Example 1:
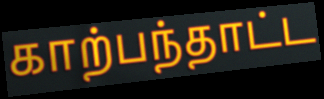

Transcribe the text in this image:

காற்பந்தாட்ட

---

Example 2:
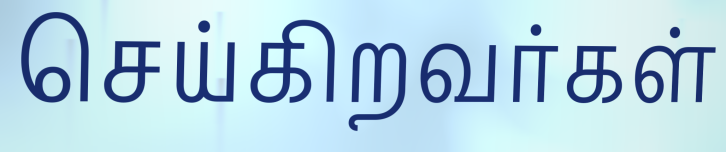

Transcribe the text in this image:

செய்கிறவர்கள்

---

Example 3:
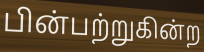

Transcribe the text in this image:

பின்பற்றுகின்ற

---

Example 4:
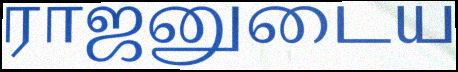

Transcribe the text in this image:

ராஜனுடைய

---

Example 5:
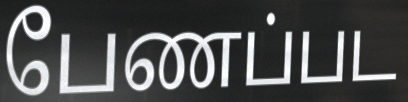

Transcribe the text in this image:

பேணப்பட